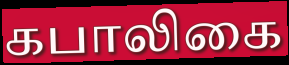
கபாலிகை